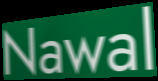
Nawal